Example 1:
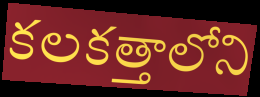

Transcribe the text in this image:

కలకత్తాలోని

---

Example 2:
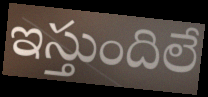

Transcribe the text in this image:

ఇస్తుందిలే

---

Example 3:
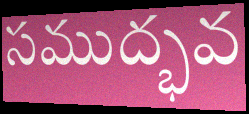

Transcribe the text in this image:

సముద్భవ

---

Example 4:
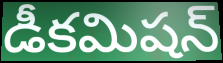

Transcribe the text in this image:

డీకమిషన్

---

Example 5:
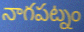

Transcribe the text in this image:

నాగపట్నం